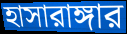
হাসারাঙ্গার